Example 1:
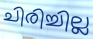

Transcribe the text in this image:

ചിരിച്ചില്ല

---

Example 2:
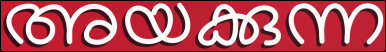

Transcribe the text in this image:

അയക്കുന്ന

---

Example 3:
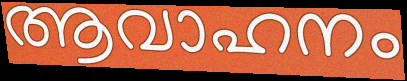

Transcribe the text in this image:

ആവാഹനം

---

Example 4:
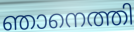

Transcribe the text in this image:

ഞാനെത്തി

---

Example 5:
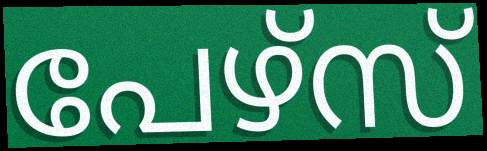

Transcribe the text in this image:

പേഴ്സ്